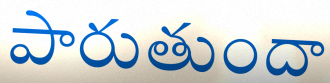
పారుతుందా